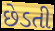
છેડતી